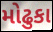
મોઢુકા